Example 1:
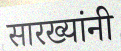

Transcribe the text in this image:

सारख्यांनी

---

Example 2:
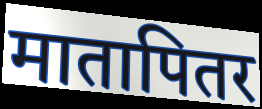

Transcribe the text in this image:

मातापितर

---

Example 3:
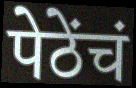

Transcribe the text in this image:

पेठेंचं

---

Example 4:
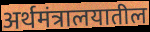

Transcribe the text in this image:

अर्थमंत्रालयातील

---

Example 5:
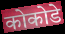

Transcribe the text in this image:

कोकोडे